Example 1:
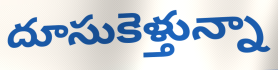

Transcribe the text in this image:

దూసుకెళ్తున్నా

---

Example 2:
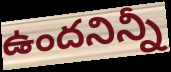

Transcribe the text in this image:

ఉందనిన్నీ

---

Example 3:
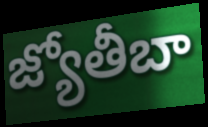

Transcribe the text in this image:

జ్యోతీబా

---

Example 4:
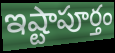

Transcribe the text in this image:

ఇష్టాపూర్తం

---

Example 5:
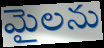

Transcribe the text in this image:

మైలను